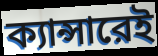
ক্যান্সারেই